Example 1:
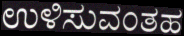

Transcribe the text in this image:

ಉಳಿಸುವಂತಹ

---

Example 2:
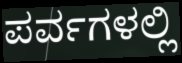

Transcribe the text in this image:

ಪರ್ವಗಳಲ್ಲಿ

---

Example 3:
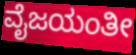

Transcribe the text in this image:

ವೈಜಯಂತೀ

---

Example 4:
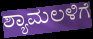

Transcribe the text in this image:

ಶ್ಯಾಮಲಳಿಗೆ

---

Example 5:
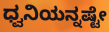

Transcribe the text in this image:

ಧ್ವನಿಯನ್ನಷ್ಟೇ